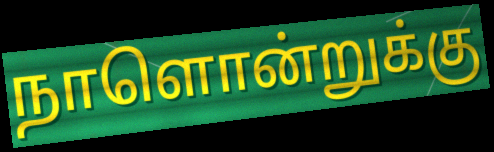
நாளொன்றுக்கு